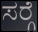
ಸರ್‍ಗೆ